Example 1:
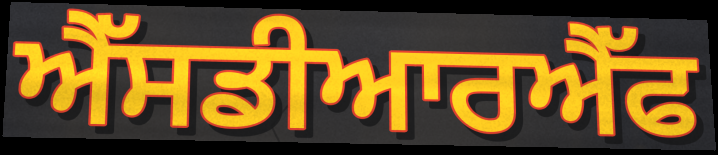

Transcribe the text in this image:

ਐੱਸਡੀਆਰਐੱਫ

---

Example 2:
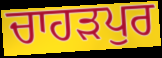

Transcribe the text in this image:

ਚਾਹਡ਼ਪੁਰ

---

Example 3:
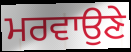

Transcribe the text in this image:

ਮਰਵਾਉਣੇ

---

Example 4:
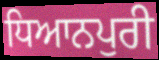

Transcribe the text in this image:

ਧਿਆਨਪੁਰੀ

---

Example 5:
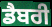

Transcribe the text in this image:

ਡੈਬਰੀ